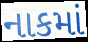
નાકમાં